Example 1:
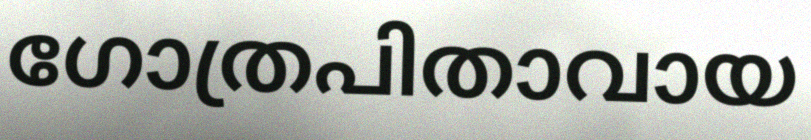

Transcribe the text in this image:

ഗോത്രപിതാവായ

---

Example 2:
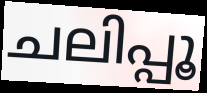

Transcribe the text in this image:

ചലിപ്പൂ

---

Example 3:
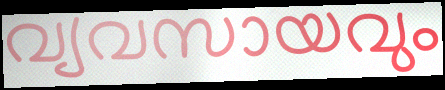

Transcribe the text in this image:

വ്യവസായവും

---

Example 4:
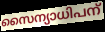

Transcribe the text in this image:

സൈന്യാധിപന്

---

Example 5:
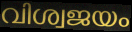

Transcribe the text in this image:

വിശ്വജയം